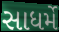
સાધર્મે